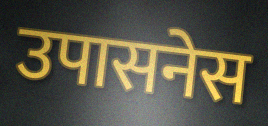
उपासनेस